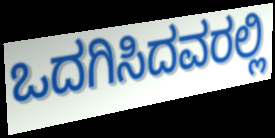
ಒದಗಿಸಿದವರಲ್ಲಿ